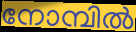
നോമ്പിൽ